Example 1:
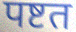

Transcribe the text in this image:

पष्टत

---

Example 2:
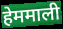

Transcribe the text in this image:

हेममाली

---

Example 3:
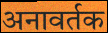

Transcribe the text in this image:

अनावर्तक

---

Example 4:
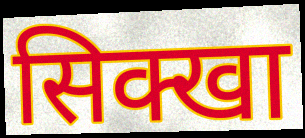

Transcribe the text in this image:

सिक्खा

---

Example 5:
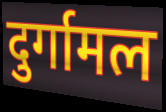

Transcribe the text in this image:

दुर्गामल